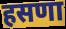
हसणा